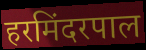
हरमिंदरपाल